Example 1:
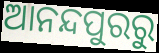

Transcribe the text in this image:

ଆନନ୍ଦପୁରରୁ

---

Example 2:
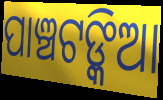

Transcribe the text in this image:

ପାଞ୍ଚଟଙ୍କିଆ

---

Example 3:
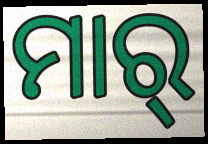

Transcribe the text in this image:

ମାର୍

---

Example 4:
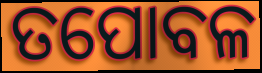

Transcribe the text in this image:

ତପୋବଳ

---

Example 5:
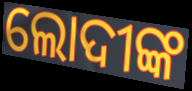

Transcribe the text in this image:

ଲୋଦୀଙ୍କ